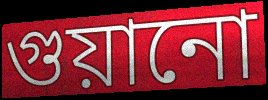
গুয়ানো